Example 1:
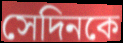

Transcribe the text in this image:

সেদিনকে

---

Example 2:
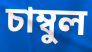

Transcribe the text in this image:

চাম্বুল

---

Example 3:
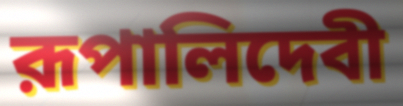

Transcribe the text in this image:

রূপালিদেবী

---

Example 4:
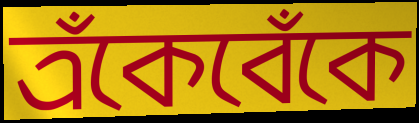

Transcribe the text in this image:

ত্রঁকেবেঁকে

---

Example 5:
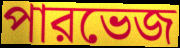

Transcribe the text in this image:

পারভেজ